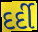
દર્દી